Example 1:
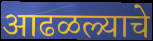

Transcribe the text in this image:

आढळल्याचे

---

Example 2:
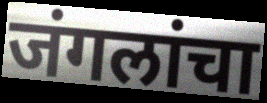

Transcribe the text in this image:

जंगलांचा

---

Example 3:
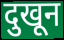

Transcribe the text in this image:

दुखून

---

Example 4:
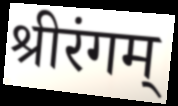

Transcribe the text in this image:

श्रीरंगम्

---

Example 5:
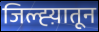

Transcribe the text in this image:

जिल्ह्य़ातून